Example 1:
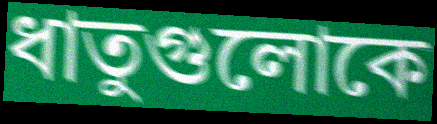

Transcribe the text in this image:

ধাতুগুলোকে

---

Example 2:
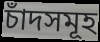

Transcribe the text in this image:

চাঁদসমূহ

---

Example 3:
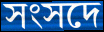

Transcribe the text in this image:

সংসদে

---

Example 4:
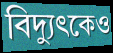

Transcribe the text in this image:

বিদ্যুৎকেও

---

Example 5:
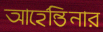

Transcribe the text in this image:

আর্হেন্তিনার